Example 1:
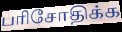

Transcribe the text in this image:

பரிசோதிக்க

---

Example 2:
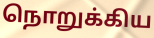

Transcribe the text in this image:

நொறுக்கிய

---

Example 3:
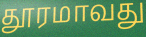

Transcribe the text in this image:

தூரமாவது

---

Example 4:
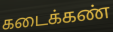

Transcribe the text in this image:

கடைக்கண்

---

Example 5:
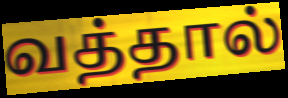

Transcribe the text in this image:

வத்தால்